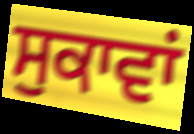
ਸੁਕਾਵਾਂ